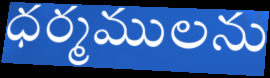
ధర్మములను